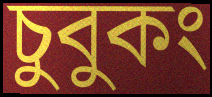
চুবুকং